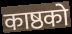
काष्ठको